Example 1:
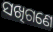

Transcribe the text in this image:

ସଖିଗଣେ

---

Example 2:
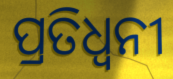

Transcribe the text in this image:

ପ୍ରତିଧ୍ଵନୀ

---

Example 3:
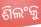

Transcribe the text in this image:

ଶିଲଂକୁ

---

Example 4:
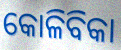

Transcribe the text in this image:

କୋଳିବିକା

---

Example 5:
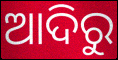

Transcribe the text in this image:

ଆଦିରୁ